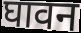
घावन